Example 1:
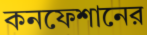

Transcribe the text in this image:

কনফেশানের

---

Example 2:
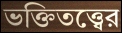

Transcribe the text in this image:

ভক্তিতত্ত্বের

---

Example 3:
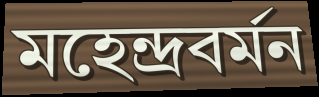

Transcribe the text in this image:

মহেন্দ্রবর্মন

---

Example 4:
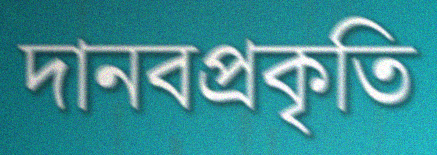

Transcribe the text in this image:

দানবপ্রকৃতি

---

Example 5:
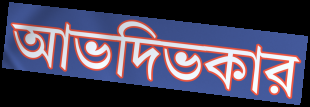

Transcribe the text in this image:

আভদিভকার